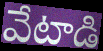
వేటాడి